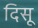
दिसू